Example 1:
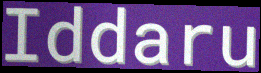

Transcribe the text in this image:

Iddaru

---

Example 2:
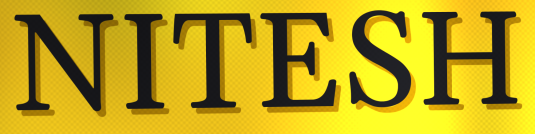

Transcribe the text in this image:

NITESH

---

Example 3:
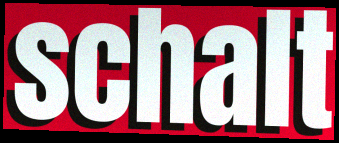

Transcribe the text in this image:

schalt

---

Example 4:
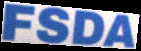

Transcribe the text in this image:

FSDA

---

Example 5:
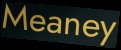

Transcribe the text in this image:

Meaney